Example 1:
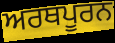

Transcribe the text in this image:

ਅਰਥਪੂਰਨ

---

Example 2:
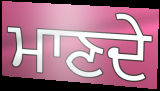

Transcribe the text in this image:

ਮਾਣਦੇ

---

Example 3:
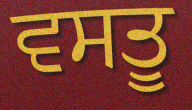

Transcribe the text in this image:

ਵਸਤੂ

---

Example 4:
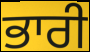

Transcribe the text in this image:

ਭਾਰੀ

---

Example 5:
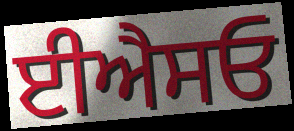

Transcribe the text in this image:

ਈਐਸਓ